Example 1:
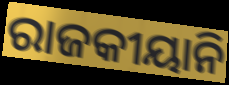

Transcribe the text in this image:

ରାଜକୀୟାନି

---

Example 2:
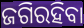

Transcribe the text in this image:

ଜଗିରହିବା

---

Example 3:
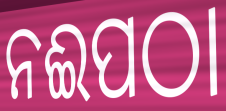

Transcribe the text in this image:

ନଈପଠା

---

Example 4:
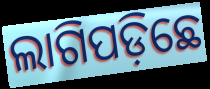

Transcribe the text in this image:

ଲାଗିପଡ଼ିଛେ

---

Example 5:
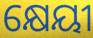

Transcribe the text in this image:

କ୍ଷେୟୀ